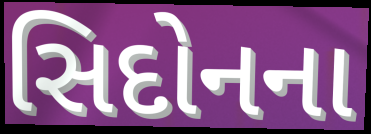
સિદોનના